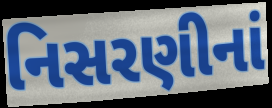
નિસરણીનાં